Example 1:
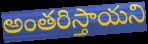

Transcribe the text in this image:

అంతరిస్తాయని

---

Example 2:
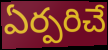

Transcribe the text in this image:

ఏర్పరిచే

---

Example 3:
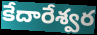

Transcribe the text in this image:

కేదారేశ్వర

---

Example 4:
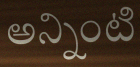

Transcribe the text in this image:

అన్నింటి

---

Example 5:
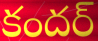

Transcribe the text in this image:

కందర్